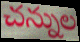
చన్నుల